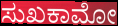
ಸುಖಕಾಮೋ